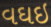
વઘઇ